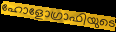
ഹോളോഗ്രാഫിയുടെ